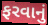
ફરવાનું